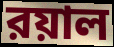
রয়াল